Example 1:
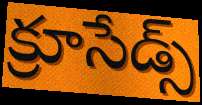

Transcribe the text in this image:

క్రూసేడ్స్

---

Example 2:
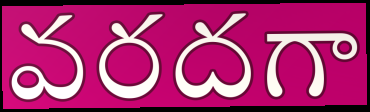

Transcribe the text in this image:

వరదగా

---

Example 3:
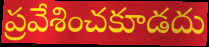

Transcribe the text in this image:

ప్రవేశించకూడదు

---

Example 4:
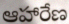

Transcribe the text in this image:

ఆహారేణ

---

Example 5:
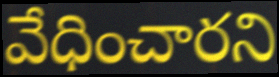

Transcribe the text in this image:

వేధించారని